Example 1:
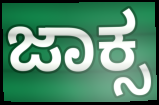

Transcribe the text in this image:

ಜಾಕ್ಸ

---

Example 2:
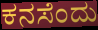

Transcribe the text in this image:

ಕನಸೆಂದು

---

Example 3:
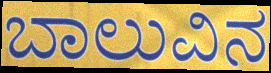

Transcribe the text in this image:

ಬಾಲುವಿನ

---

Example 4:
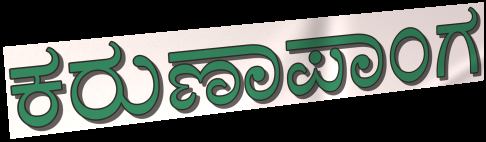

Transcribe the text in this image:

ಕರುಣಾಪಾಂಗ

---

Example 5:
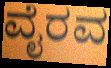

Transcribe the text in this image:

ವೈರವ